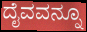
ದೈವವನ್ನೂ